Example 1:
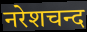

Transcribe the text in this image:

नरेशचन्द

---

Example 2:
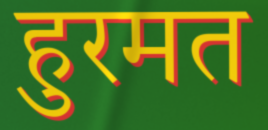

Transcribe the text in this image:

हुरमत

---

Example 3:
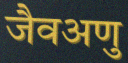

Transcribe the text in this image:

जैवअणु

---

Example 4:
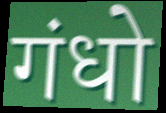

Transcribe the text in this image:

गंधो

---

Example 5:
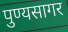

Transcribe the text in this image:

पुण्यसागर